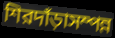
শিরদাঁড়াসম্পন্ন